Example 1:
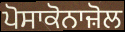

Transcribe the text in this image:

ਪੋਸਾਕੋਨਾਜ਼ੋਲ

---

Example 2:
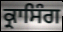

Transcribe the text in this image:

ਕ੍ਰਾਸਿੰਗ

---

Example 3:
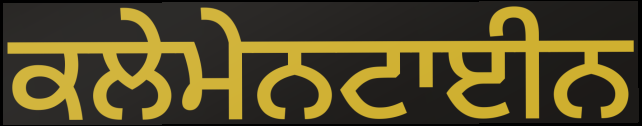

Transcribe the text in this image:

ਕਲੇਮੇਨਟਾਈਨ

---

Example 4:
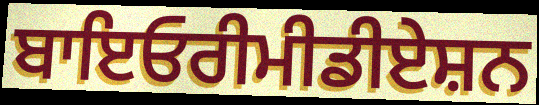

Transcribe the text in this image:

ਬਾਇਓਰੀਮੀਡੀਏਸ਼ਨ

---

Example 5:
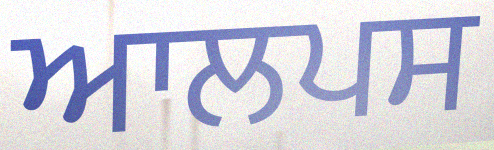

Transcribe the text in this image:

ਆਲਪਸ